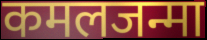
कमलजन्मा